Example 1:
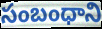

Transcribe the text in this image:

సంబంధాని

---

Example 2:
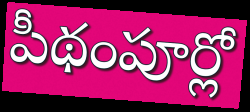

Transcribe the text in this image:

పీథంపూర్లో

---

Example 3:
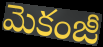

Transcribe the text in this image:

మెకంజీ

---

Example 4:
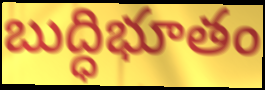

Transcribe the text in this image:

బుద్ధిభూతం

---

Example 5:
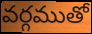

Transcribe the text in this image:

వర్గముతో